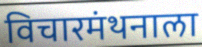
विचारमंथनाला